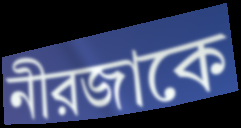
নীরজাকে